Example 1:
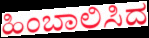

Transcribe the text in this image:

ಹಿಂಬಾಲಿಸಿದ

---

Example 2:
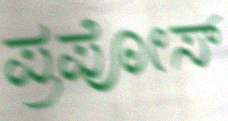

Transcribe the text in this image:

ಪ್ರಪೋಸ್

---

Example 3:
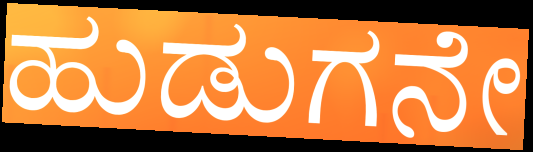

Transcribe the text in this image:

ಹುಡುಗನೇ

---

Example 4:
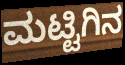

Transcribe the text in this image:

ಮಟ್ಟಿಗಿನ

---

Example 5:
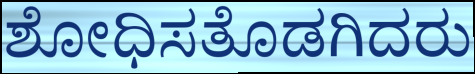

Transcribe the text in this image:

ಶೋಧಿಸತೊಡಗಿದರು